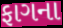
ફાગના